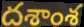
దశాంశ